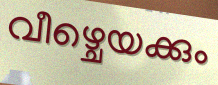
വീഴ്ചെയക്കും